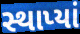
સ્થાપ્યાં